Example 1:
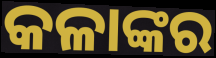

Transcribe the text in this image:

କଳାଙ୍କର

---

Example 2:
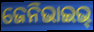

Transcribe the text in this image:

ଜେନିଭାଇଭ୍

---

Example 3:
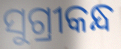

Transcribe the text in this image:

ସୁଗ୍ରୀକନ୍ଧ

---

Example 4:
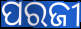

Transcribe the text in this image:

ପରଜୀ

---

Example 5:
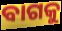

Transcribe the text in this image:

ବାଗକୁ